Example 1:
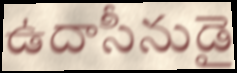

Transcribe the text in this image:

ఉదాసీనుడై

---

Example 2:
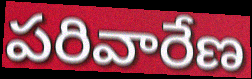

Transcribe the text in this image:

పరివారేణ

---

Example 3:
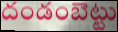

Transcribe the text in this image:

దండంబెట్టు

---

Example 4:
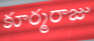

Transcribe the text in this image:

కూర్మరాజు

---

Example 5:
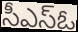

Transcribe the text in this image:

సీఎస్ఓ